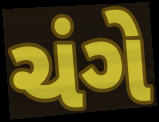
ચંગે